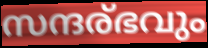
സന്ദര്ഭവും